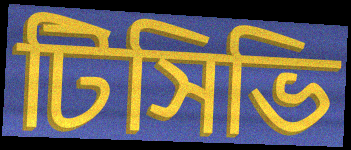
টিসিভি